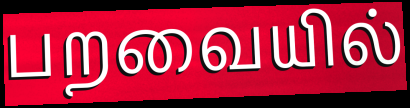
பறவையில்